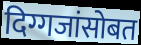
दिग्गजांसोबत